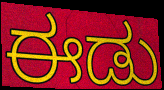
ಈಡು